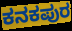
ಕನಕಪುರ